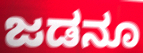
ಜಡನೂ